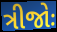
ત્રીજોઃ